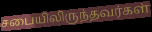
சபையிலிருந்தவர்கள்